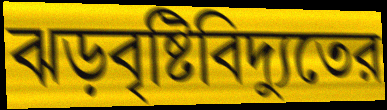
ঝড়বৃষ্টিবিদ্যুতের